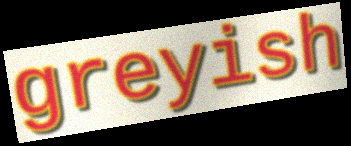
greyish